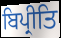
ਬਿਪ੍ਰੀਤਿ